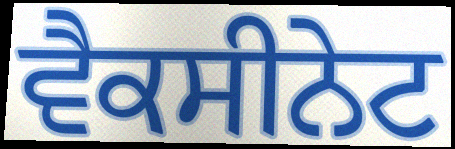
ਵੈਕਸੀਨੇਟ